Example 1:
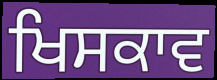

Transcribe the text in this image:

ਖਿਸਕਾਵ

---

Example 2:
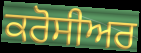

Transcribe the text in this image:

ਕਰੋਸੀਅਰ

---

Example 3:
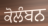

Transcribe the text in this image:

ਕੋਲੰਬਨ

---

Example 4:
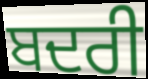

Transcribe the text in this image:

ਬਦਰੀ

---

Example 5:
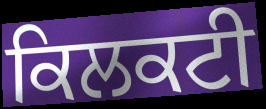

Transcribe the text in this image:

ਕਿਲਕਟੀ